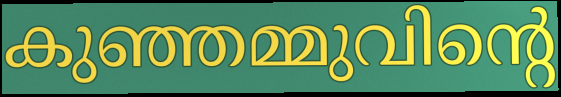
കുഞ്ഞമ്മുവിന്റെ